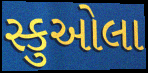
સ્કુઓલા